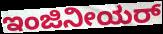
ಇಂಜಿನೀಯರ್